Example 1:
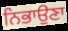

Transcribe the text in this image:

ਨਿਭਾਉਣਾ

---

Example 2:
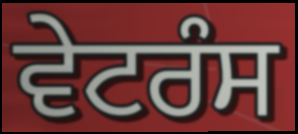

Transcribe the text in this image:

ਵੇਟਰੰਸ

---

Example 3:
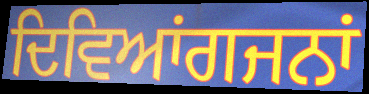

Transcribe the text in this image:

ਦਿਵਿਆਂਗਜਨਾਂ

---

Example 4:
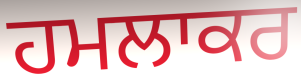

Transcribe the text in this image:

ਹਮਲਾਕਰ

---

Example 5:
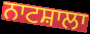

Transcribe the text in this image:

ਨਾਟਸ਼ਾਲਾ